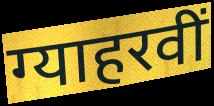
ग्याहरवीं